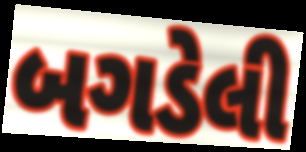
બગડેલી